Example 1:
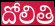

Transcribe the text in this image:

దోలితి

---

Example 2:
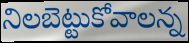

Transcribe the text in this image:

నిలబెట్టుకోవాలన్న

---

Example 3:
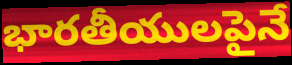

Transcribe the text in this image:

భారతీయులపైనే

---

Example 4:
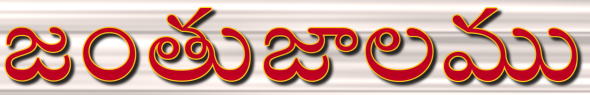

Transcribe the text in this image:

జంతుజాలము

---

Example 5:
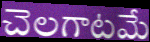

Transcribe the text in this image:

చెలగాటమే